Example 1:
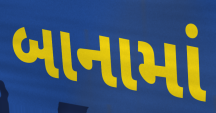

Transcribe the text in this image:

બાનામાં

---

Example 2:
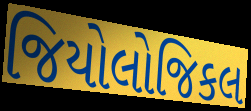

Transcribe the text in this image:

જિયોલોજિકલ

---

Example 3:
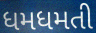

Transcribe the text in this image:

ધમધમતી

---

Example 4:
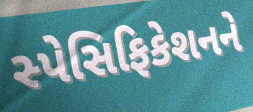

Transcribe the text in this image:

સ્પેસિફિકેશનને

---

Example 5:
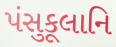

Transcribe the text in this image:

પંસુકૂલાનિ